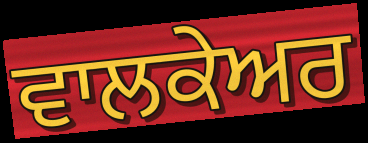
ਵਾਲਕੇਅਰ